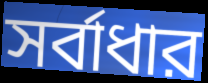
সর্বাধার